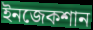
ইনজেকশান